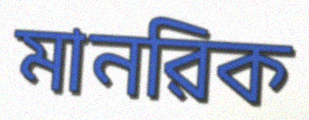
মানৱিক